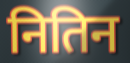
नितिन